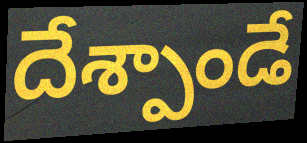
దేశ్పాండే